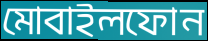
মোবাইলফোন